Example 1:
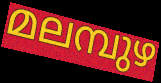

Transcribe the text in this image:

മലമ്പുഴ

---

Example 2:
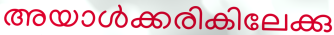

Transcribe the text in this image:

അയാൾക്കരികിലേക്കു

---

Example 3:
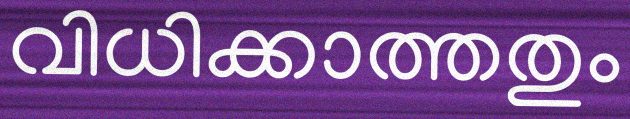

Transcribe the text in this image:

വിധിക്കാത്തതും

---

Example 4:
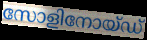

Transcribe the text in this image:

സോളിനോയ്ഡ്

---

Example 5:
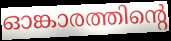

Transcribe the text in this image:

ഓങ്കാരത്തിന്റെ